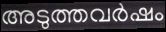
അടുത്തവർഷം